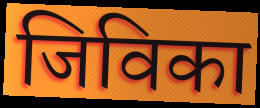
जिविका